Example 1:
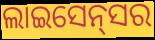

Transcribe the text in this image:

ଲାଇସେନ୍‌ସର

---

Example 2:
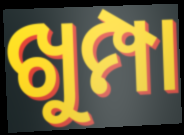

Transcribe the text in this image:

ଖୁମ୍ପା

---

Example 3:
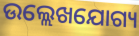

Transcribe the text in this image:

ଉଲ୍ଲେଖଯୋଗ୍ୟ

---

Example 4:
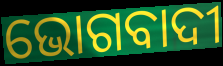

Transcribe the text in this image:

ଭୋଗବାଦୀ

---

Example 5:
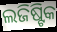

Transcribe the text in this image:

ଲଜିଷ୍ଟିକ